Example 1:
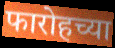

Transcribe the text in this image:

फारोहच्या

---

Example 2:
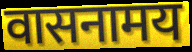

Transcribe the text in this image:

वासनामय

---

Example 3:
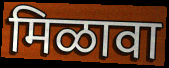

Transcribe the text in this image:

मिळावा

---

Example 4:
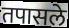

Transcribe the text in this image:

तपासले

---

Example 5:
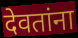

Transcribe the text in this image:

देवतांना